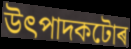
উৎপাদকটোৰ